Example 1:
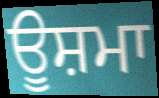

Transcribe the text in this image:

ਊਸ਼ਮਾ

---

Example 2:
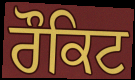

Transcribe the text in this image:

ਰੌਕਿਟ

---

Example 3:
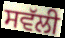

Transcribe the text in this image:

ਸਵੱਲੀ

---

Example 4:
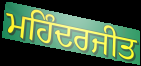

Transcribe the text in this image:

ਮਹਿੰਦਰਜੀਤ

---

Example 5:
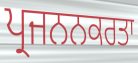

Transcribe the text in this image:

ਪ੍ਰਜਨਨਕਰਤਾ